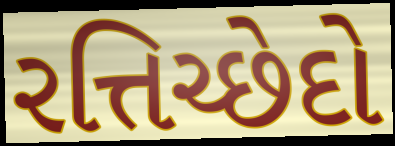
રત્તિચ્છેદો